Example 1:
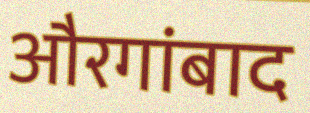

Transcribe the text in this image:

औरगांबाद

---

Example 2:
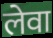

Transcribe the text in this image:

लेवा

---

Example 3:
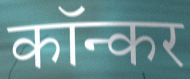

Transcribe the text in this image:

कॉन्कर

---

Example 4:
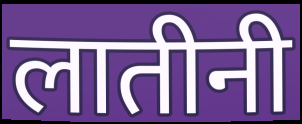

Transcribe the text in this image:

लातीनी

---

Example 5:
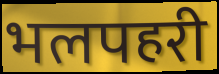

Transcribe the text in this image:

भलपहरी